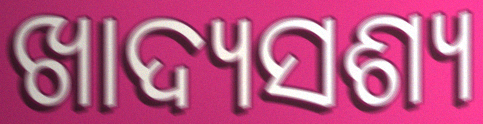
ଖାଦ୍ୟସଶ୍ୟ